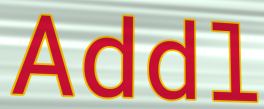
Addl